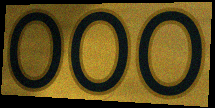
OOO